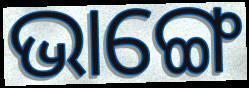
ଭାଙ୍ଗେ